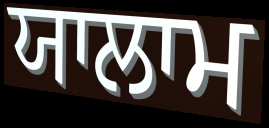
ਯਾਲਾਮ